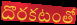
దొరకటంతో